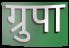
ग्रुपा